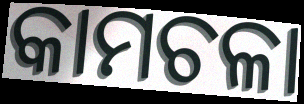
କାମଚଳା